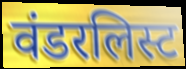
वंडरलिस्ट